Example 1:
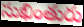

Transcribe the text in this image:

సుఖింతురు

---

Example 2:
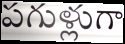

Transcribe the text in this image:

పగుళ్లుగా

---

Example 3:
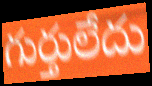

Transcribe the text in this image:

గుర్తులేదు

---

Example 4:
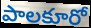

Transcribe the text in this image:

పాలకూరో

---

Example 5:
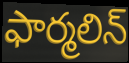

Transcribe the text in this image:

ఫార్మలిన్